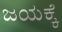
ಜಯಕ್ಕೆ